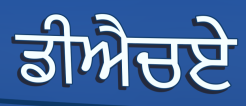
ਡੀਐਚਏ